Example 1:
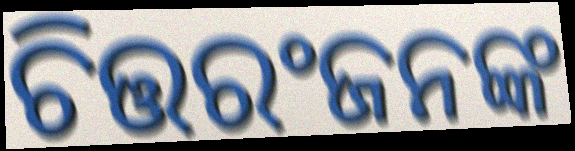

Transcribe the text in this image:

ଚିତ୍ତରଂଜନଙ୍କ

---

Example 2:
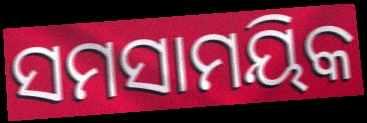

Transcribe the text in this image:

ସମସାମୟିକ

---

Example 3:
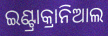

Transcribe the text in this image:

ଇଣ୍ଟ୍ରାକ୍ରାନିଆଲ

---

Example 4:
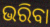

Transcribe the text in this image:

ଭରିବା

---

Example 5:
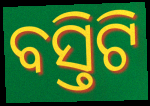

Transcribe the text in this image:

ବସ୍ତିଟି